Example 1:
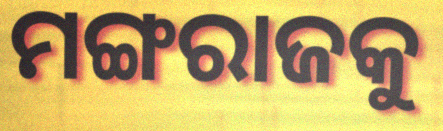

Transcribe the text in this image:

ମଙ୍ଗରାଜକୁ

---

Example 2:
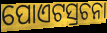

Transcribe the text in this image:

ପୋଏଟସ୍ରଚନା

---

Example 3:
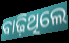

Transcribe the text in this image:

ବାଢ଼ିଥିଲେ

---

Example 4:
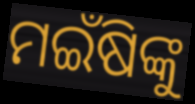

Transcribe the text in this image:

ମଇଁଷିଙ୍କୁ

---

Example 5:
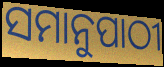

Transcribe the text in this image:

ସମାନୁପାଠୀ